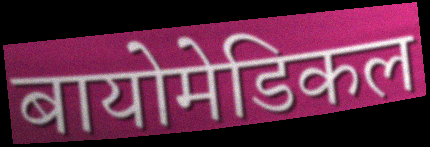
बायोमेडिकल